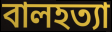
বালহত্যা